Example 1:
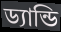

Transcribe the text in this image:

ড্যান্ডি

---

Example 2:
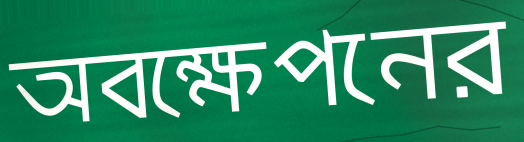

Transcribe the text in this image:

অবক্ষেপনের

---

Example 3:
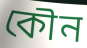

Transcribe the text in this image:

কৌন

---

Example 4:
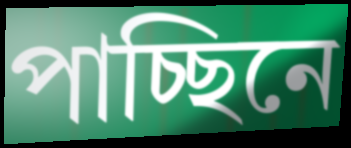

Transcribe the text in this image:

পাচ্ছিনে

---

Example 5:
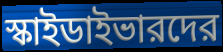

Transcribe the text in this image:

স্কাইডাইভারদের